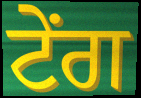
ਟੇਂਗ